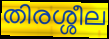
തിരശ്ശീല